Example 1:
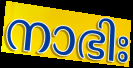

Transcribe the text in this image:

നാഭിഃ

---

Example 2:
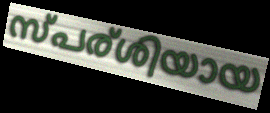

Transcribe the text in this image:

സ്പര്ശിയായ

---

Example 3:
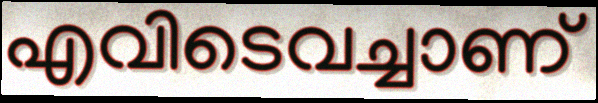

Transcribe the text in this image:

എവിടെവച്ചാണ്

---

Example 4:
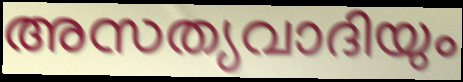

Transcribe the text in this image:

അസത്യവാദിയും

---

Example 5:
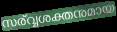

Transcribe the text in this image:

സര്വ്വശക്തനുമായ